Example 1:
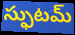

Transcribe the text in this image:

స్ఫుటమ్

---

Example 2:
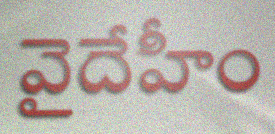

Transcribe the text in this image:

వైదేహీం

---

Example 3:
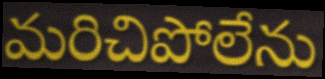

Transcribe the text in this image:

మరిచిపోలేను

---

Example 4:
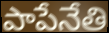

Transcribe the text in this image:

పాపేనేతి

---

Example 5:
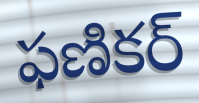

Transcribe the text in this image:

ఫణికర్